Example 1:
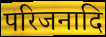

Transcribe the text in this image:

परिजनादि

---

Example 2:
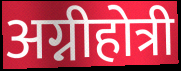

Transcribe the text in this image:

अग्नीहोत्री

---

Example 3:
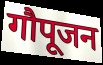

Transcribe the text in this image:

गौपूजन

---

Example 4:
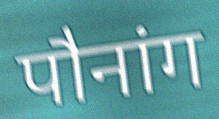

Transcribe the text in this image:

पौनांग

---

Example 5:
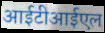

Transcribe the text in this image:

आईटीआईएल